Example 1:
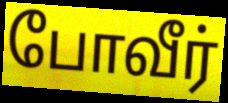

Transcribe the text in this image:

போவீர்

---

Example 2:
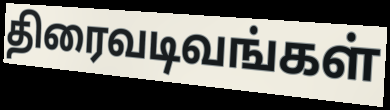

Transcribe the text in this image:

திரைவடிவங்கள்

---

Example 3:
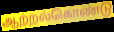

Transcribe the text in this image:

ஆற்றல்கொண்டு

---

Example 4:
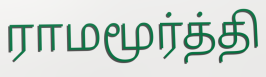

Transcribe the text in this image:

ராமமூர்த்தி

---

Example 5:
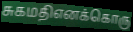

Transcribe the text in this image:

சுகமதிஎனக்கொரு